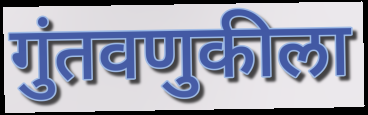
गुंतवणुकीला